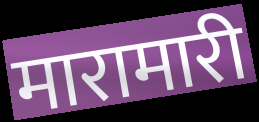
मारामारी